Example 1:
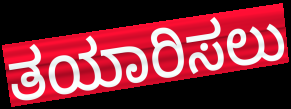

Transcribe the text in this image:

ತಯಾರಿಸಲು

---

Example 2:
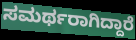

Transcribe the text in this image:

ಸಮರ್ಥರಾಗಿದ್ದಾರೆ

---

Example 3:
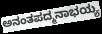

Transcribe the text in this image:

ಅನಂತಪದ್ಮನಾಭಯ್ಯ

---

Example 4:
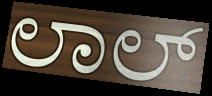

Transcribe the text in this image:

ಲಾಲ್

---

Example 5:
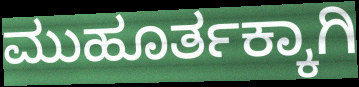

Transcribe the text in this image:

ಮುಹೂರ್ತಕ್ಕಾಗಿ